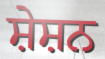
ਸ਼ੇਸ਼ਨ